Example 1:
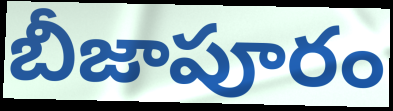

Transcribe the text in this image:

బీజాపూరం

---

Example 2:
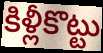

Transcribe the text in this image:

కిళ్లీకొట్టు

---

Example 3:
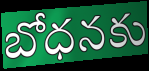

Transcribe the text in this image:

బోధనకు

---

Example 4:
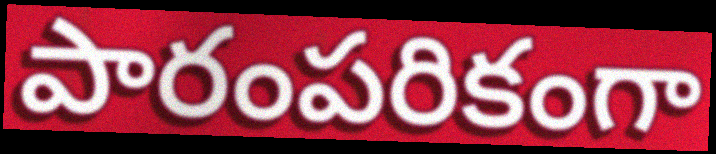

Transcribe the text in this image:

పారంపరికంగా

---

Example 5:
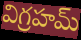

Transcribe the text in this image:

విగ్రహమ్